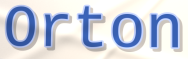
Orton